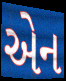
એન